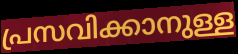
പ്രസവിക്കാനുള്ള